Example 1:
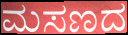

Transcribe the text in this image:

ಮಸಣದ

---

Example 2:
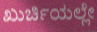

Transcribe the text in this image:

ಖುರ್ಚಿಯಲ್ಲೇ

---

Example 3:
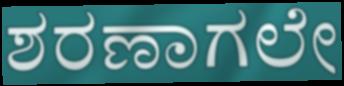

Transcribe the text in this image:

ಶರಣಾಗಲೇ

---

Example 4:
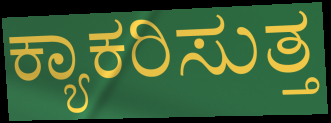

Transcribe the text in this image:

ಕ್ಯಾಕರಿಸುತ್ತ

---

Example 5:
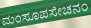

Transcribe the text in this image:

ಮಂಸೂಪಸೇಚನಂ